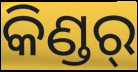
କିଣ୍ଡର୍